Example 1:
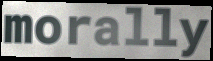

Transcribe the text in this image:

morally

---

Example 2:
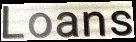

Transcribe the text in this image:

Loans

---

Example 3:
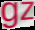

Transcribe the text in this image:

gz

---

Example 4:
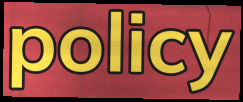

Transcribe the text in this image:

policy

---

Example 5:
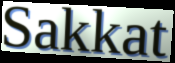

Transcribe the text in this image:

Sakkat